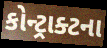
કોન્ટ્રાક્ટના